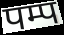
पम्प